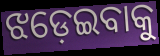
ଝଡ଼େଇବାକୁ